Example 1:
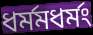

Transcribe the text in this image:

ধর্মমধর্মং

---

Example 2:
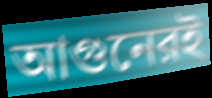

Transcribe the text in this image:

আগুনেরই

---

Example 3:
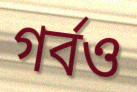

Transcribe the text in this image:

গর্বও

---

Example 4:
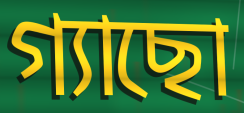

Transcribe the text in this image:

গ্যাছো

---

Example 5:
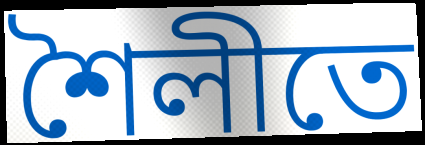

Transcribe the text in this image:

শৈলীতে